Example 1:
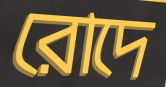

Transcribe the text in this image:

রোদে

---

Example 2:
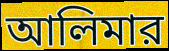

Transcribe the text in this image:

আলিমার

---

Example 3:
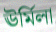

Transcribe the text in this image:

ঊর্মিলা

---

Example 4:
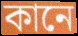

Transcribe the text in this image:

কানে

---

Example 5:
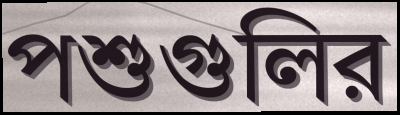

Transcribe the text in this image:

পশুগুলির